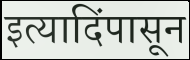
इत्यादिंपासून